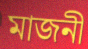
মাজনী